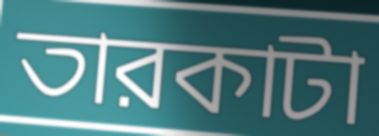
তারকাটা